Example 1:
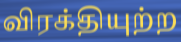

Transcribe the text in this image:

விரக்தியுற்ற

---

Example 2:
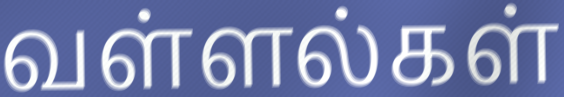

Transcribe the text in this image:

வள்ளல்கள்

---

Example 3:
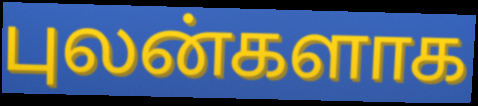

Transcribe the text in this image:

புலன்களாக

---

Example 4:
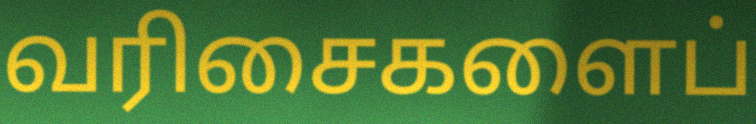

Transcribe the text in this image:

வரிசைகளைப்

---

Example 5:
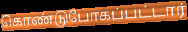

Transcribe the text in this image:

கொண்டுபோகப்பட்டார்